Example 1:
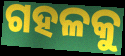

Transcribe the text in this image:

ଗହଳକୁ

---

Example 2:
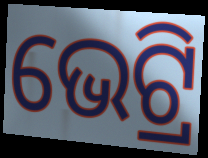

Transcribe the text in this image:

ଭେଟ୍ରି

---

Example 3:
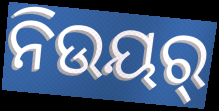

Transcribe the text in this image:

ନିଉୟର୍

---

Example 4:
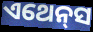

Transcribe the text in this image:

ଏଥେନ୍‌ସ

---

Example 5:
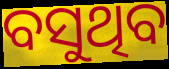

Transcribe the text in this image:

ବସୁଥିବ